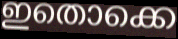
ഇതൊക്കെ